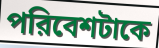
পরিবেশটাকে